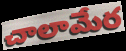
చాలామేర